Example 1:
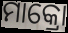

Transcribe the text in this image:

ମାକ୍ରୋ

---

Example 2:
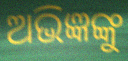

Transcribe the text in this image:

ଅଭିଜ୍ଞଙ୍କୁ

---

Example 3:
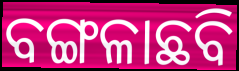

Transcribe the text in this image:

ବଙ୍ଗଳାଛବି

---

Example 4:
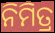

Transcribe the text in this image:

ନିମିତ୍ର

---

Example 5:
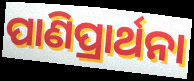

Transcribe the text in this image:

ପାଣିପ୍ରାର୍ଥନା